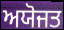
ਅਯੋਜਤ